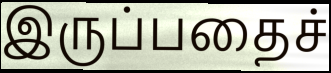
இருப்பதைச்